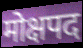
मोक्षपद